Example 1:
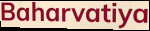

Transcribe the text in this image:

Baharvatiya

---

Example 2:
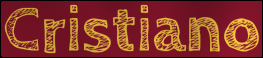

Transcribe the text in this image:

Cristiano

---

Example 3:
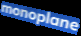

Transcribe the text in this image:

monoplane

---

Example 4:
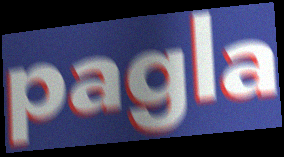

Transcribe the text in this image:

pagla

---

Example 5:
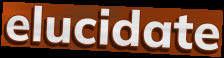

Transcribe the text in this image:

elucidate